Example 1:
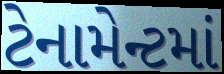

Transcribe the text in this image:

ટેનામેન્ટમાં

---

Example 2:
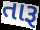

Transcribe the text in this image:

તારૂ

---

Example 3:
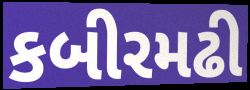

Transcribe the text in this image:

કબીરમઢી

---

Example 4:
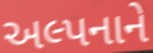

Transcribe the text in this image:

અલ્પનાને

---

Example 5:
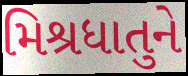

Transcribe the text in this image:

મિશ્રધાતુને